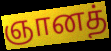
ஞானத்